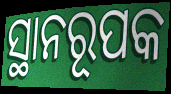
ସ୍ଥାନରୂପକ